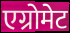
एग्रोमेट